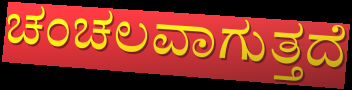
ಚಂಚಲವಾಗುತ್ತದೆ